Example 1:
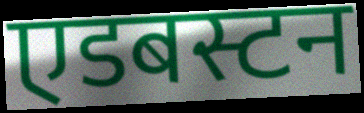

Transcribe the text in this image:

एडबस्टन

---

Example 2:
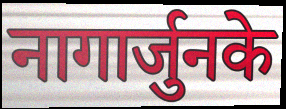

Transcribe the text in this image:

नागार्जुनके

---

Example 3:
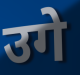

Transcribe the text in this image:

उगे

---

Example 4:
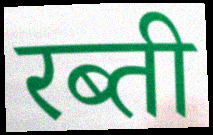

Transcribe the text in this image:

रब्ती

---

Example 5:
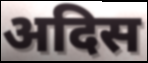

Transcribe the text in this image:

अदिस